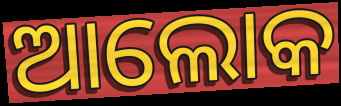
ଆଲୋକ